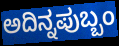
ಅದಿನ್ನಪುಬ್ಬಂ